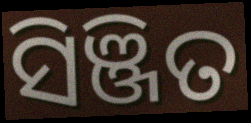
ସିଞ୍ଜିତ